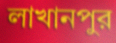
লাখানপুর